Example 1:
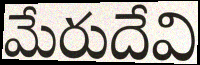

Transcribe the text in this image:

మేరుదేవి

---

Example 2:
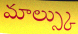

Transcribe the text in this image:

మాల్స్కు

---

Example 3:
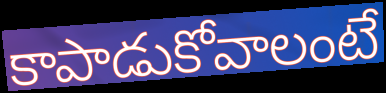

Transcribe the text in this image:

కాపాడుకోవాలంటే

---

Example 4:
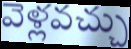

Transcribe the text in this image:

వెళ్లవచ్చు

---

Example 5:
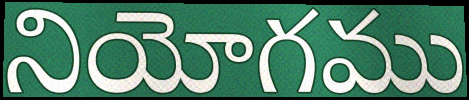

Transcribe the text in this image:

నియోగము